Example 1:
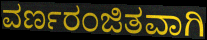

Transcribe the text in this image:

ವರ್ಣರಂಜಿತವಾಗಿ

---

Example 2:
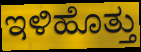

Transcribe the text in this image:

ಇಳಿಹೊತ್ತು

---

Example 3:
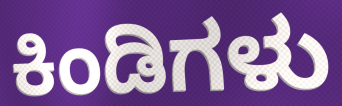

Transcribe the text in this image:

ಕಿಂಡಿಗಳು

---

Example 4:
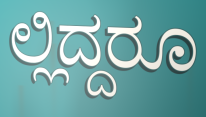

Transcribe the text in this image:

ಲ್ಲಿದ್ದರೂ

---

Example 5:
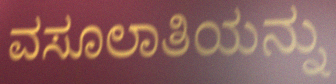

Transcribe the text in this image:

ವಸೂಲಾತಿಯನ್ನು